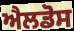
ਐਲਡੋਸ